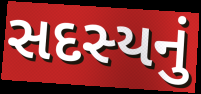
સદસ્યનું